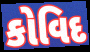
કોવિદ